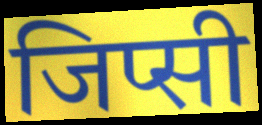
जिप्सी